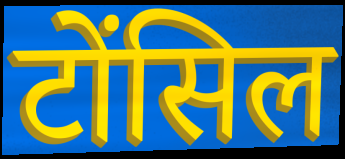
टोंसिल